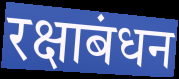
रक्षाबंधन